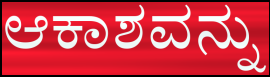
ಆಕಾಶವನ್ನು